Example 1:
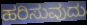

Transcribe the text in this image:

ಹರಿಸುವುದು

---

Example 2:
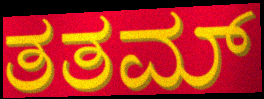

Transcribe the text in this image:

ತತಮ್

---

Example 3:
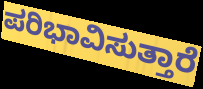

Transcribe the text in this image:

ಪರಿಭಾವಿಸುತ್ತಾರೆ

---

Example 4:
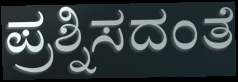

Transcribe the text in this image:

ಪ್ರಶ್ನಿಸದಂತೆ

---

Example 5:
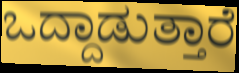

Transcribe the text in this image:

ಒದ್ದಾಡುತ್ತಾರೆ